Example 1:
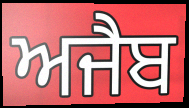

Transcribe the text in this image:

ਅਜੈਬ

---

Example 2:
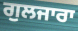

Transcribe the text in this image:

ਗੁਲਜਾਰਾ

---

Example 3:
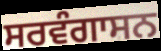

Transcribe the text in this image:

ਸਰਵੰਗਾਸਨ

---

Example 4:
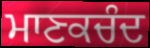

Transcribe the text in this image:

ਮਾਣਕਚੰਦ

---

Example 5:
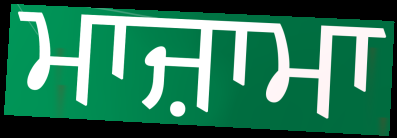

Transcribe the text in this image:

ਮਾਜ਼ਾਮਾ